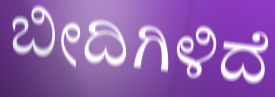
ಬೀದಿಗಿಳಿದೆ